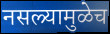
नसल्यामुळेच